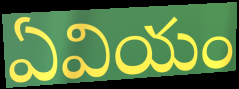
ఏవియం